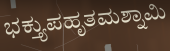
ಭಕ್ತ್ಯುಪಹೃತಮಶ್ನಾಮಿ